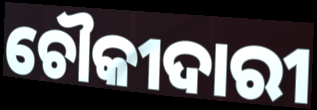
ଚୌକୀଦାରୀ